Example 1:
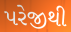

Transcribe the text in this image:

પરેજીથી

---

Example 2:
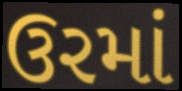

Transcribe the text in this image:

ઉરમાં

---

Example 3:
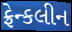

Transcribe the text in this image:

ફ્રેન્કલીન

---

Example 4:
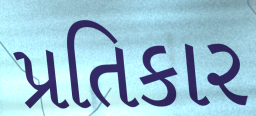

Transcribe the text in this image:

પ્રતિકાર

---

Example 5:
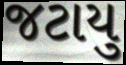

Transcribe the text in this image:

જટાયુ